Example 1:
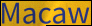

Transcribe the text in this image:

Macaw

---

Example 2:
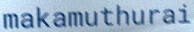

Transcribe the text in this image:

makamuthurai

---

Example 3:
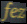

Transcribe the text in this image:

fez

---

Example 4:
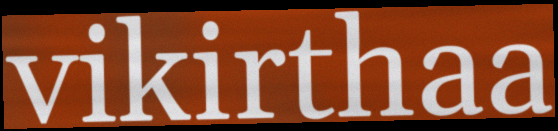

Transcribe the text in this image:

vikirthaa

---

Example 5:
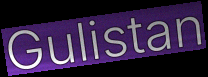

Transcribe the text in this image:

Gulistan